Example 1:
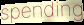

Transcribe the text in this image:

spending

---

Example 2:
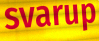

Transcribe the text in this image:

svarup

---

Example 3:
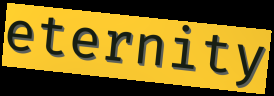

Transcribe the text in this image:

eternity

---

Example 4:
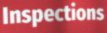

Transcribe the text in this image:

Inspections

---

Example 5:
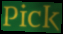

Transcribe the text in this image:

Pick